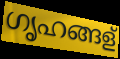
ഗൃഹങ്ങള്